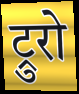
ट्रुरो